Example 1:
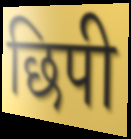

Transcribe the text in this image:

छिपी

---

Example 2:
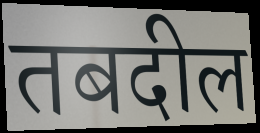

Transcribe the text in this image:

तबदील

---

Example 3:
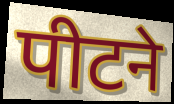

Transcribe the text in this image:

पीटने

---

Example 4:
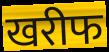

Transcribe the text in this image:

खरीफ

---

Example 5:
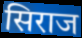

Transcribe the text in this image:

सिराज